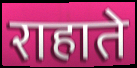
राहाते